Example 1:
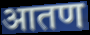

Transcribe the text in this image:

आतण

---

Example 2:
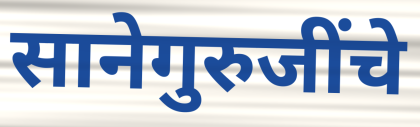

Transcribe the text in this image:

सानेगुरुजींचे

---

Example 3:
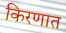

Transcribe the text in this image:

किरणात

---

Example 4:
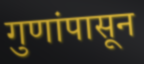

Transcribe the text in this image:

गुणांपासून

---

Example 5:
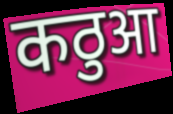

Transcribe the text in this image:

कठुआ